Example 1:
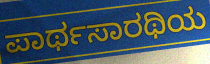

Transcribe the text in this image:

ಪಾರ್ಥಸಾರಥಿಯ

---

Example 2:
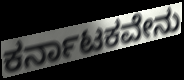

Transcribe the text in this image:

ಕರ್ನಾಟಕವೇನು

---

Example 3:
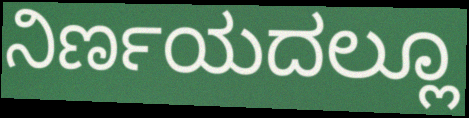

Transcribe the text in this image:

ನಿರ್ಣಯದಲ್ಲೂ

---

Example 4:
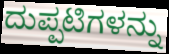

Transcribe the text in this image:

ದುಪ್ಪಟಿಗಳನ್ನು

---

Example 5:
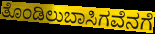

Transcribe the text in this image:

ತೊಂಡಿಲುಬಾಸಿಗವೆನಗೆ